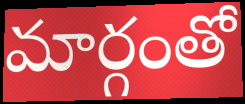
మార్గంతో